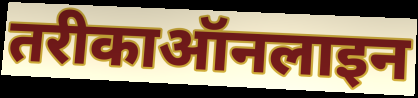
तरीकाऑनलाइन